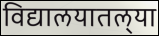
विद्यालयातल्या